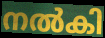
നൽകി